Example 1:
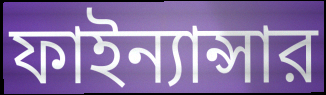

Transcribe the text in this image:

ফাইন্যান্সার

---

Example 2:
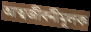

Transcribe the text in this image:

আত্মজীবনীমূলক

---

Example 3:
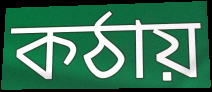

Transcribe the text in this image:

কঠায়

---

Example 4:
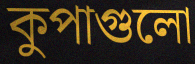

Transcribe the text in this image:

কুপাগুলো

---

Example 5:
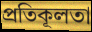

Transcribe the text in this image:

প্রতিকূলতা